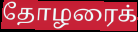
தோழரைக்